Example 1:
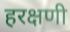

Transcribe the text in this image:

हरक्षणी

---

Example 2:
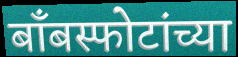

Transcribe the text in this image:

बॉंबस्फोटांच्या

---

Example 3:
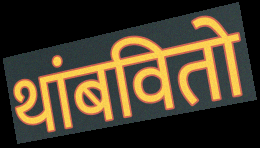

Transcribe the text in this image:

थांबवितो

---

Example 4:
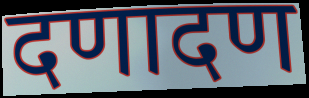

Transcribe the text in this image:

दणादण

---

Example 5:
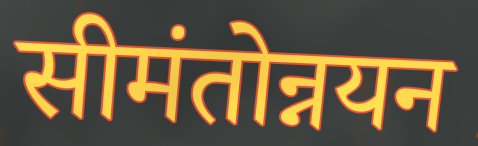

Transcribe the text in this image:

सीमंतोन्नयन